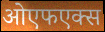
ओएफएक्स